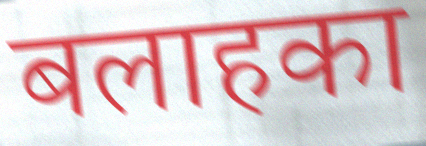
बलाहका